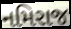
નમિરાજ